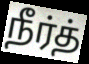
நீர்த்